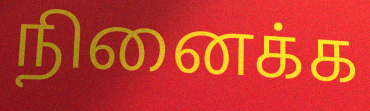
நினைக்க